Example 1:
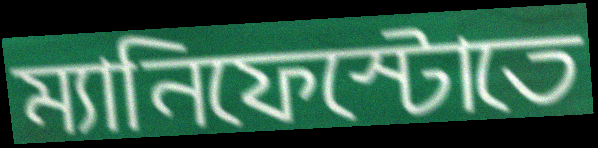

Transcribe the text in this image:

ম্যানিফেস্টোতে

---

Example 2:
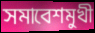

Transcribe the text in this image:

সমাবেশমুখী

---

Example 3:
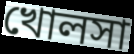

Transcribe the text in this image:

খোলসা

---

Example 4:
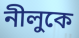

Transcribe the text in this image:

নীলুকে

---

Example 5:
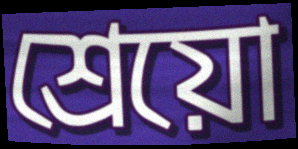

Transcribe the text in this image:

শ্রেয়ো